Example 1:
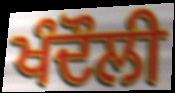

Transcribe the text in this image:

ਖੰਦੌਲੀ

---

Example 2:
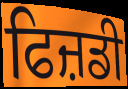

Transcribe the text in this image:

ਫਿਜ਼ਡੀ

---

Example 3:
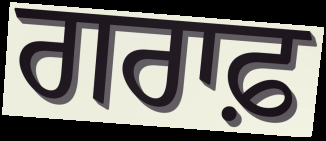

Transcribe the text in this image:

ਗਰਾਫ਼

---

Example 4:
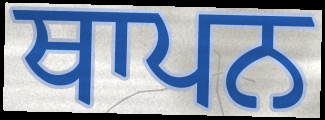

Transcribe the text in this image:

ਥਾਪਨ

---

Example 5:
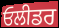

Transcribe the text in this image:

ਓਲੀਡਰ